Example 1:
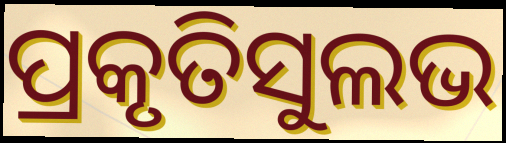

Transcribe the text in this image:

ପ୍ରକୃତିସୁଲଭ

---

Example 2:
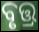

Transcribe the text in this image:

ବୃତ୍ତ୍ର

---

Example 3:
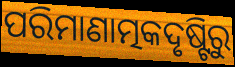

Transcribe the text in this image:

ପରିମାଣାତ୍ମକଦୃଷ୍ଟିରୁ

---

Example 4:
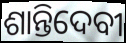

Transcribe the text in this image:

ଶାନ୍ତିଦେବୀ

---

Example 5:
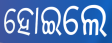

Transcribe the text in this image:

ହୋଇଲେ